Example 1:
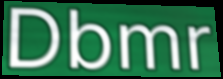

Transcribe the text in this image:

Dbmr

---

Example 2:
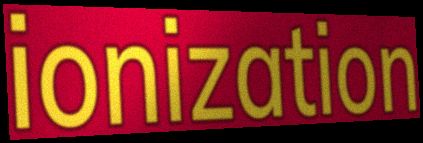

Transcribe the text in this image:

ionization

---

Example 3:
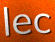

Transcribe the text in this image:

lec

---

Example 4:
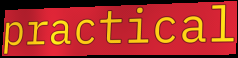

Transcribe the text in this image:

practical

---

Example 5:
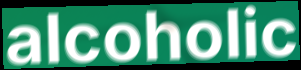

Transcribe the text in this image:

alcoholic